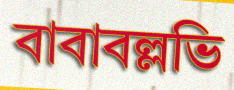
বাবাবল্লভি